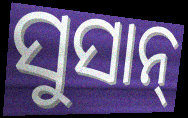
ସୁସାନ୍